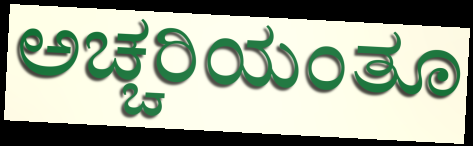
ಅಚ್ಚರಿಯಂತೂ